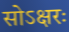
सोऽक्षरः